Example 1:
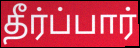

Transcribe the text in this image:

தீர்ப்பார்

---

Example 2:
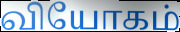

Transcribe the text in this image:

வியோகம்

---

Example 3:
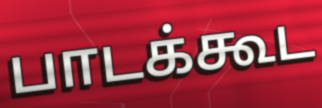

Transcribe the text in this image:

பாடக்கூட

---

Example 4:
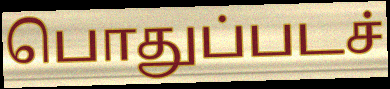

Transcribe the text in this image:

பொதுப்படச்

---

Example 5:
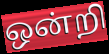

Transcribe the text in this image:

ஒன்றி